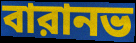
বারানভ